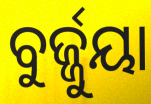
ବୁର୍ଜ୍ଜୁୟା